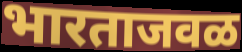
भारताजवळ